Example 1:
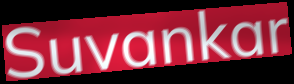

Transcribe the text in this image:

Suvankar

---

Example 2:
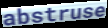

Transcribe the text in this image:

abstruse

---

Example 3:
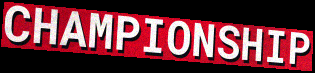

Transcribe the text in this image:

CHAMPIONSHIP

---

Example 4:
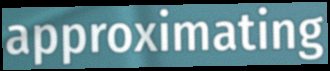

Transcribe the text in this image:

approximating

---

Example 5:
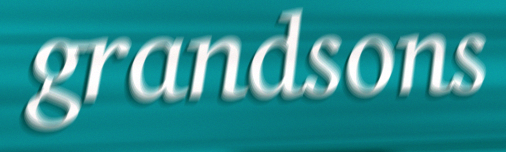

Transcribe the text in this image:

grandsons